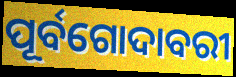
ପୂର୍ବଗୋଦାବରୀ